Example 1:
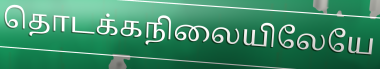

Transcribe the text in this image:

தொடக்கநிலையிலேயே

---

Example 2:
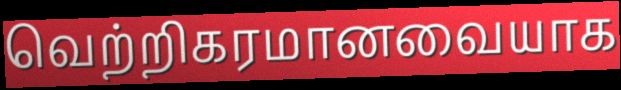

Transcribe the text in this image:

வெற்றிகரமானவையாக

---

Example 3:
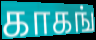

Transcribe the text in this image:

காகங்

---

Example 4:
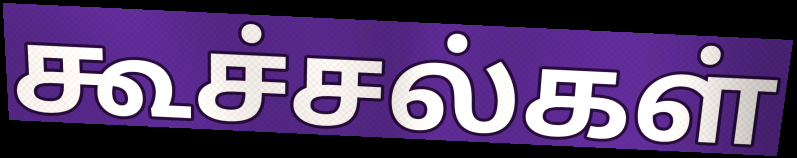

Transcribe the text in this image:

கூச்சல்கள்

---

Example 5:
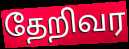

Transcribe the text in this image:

தேறிவர